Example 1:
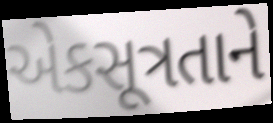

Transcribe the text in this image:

એકસૂત્રતાને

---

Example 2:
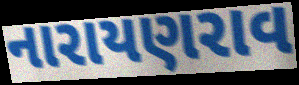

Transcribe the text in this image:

નારાયણરાવ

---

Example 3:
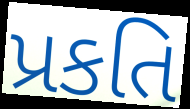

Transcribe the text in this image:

પ્રકતિ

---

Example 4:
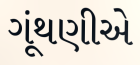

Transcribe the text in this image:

ગૂંથણીએ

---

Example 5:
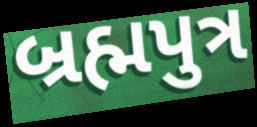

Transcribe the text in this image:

બ્રહ્મપુત્ર